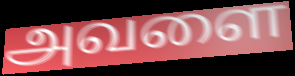
அவளை